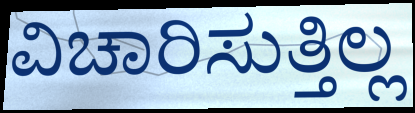
ವಿಚಾರಿಸುತ್ತಿಲ್ಲ